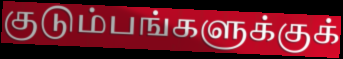
குடும்பங்களுக்குக்